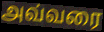
அவ்வரை